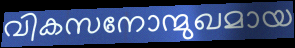
വികസനോന്മുഖമായ